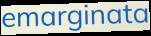
emarginata